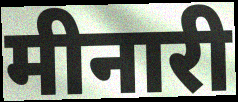
मीनारी